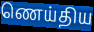
ணெய்திய